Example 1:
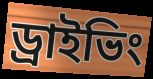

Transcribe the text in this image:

ড্ৰাইভিং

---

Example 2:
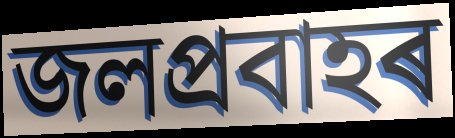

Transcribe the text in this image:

জলপ্ৰবাহৰ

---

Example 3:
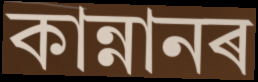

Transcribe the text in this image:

কান্নানৰ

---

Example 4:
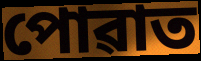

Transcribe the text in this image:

পোৱাত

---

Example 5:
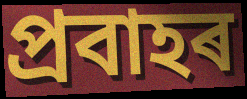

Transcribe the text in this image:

প্ৰবাহৰ